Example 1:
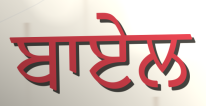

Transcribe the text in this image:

ਬਾਏਲ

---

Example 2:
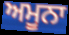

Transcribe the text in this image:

ਅਮੂਨਾ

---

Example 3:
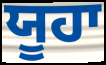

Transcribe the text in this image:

ਯੂਹਾ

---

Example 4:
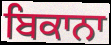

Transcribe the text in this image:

ਬਿਕਾਨਾ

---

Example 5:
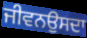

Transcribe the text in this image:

ਜੀਵਨਉਸਦਾ